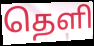
தெளி